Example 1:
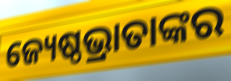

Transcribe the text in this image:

ଜ୍ୟେଷ୍ଠଭ୍ରାତାଙ୍କର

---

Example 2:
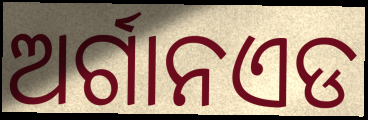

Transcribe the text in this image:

ଅର୍ଗାନଏଡ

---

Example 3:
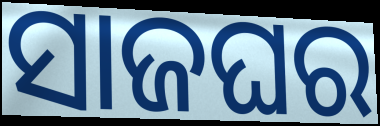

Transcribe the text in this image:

ସାଜଘର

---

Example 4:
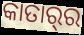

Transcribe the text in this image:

କାତାର୍‌ର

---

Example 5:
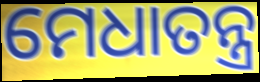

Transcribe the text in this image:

ମେଧାତନ୍ତ୍ର